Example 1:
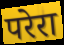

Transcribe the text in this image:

परेरा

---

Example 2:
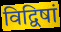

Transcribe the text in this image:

विद्विषां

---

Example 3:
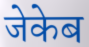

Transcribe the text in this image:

जेकेब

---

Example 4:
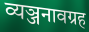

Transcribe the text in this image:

व्यञ्जनावग्रह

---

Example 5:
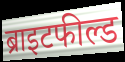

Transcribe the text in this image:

ब्राइटफील्ड